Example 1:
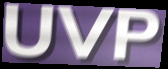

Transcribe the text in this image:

UVP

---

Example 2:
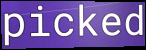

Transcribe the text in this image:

picked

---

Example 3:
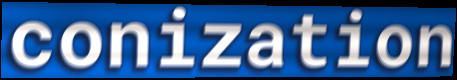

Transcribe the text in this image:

conization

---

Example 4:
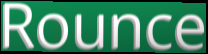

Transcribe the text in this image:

Rounce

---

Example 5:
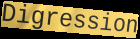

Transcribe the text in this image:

Digression